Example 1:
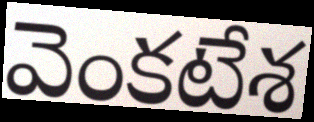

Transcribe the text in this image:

వెంకటేశ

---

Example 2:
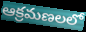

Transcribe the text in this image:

ఆక్రమణలలో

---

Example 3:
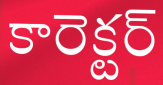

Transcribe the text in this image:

కారెక్టర్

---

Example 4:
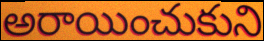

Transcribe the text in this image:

అరాయించుకుని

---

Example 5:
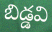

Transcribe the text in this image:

బిడ్డవి